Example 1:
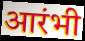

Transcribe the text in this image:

आरंभी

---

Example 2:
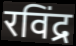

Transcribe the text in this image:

रविंद्र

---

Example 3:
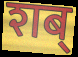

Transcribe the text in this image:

शब्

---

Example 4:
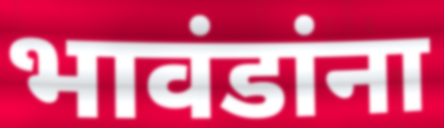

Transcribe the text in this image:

भावंडांना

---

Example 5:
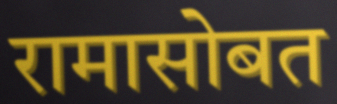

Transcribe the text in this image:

रामासोबत